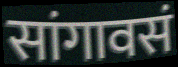
सांगावसं